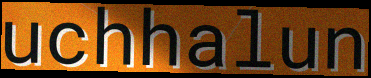
uchhalun